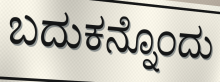
ಬದುಕನ್ನೊಂದು